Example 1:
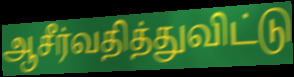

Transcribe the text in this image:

ஆசீர்வதித்துவிட்டு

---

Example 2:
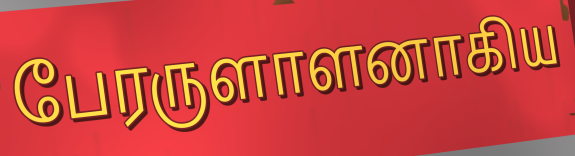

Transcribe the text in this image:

பேரருளாளனாகிய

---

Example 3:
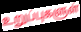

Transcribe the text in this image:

உறுப்புகளுள்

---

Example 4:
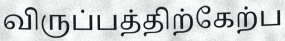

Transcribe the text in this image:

விருப்பத்திற்கேற்ப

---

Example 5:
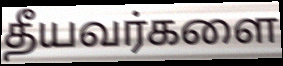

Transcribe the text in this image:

தீயவர்களை